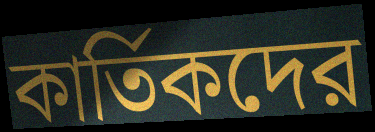
কার্তিকদের